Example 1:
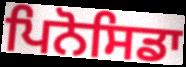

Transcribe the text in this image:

ਪਿਨੋਸਿਡਾ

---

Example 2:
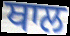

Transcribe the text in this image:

ਥਾਲ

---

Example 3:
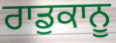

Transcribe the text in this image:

ਰਾਡੁਕਾਨੂ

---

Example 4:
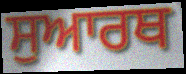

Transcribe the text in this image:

ਸੁਆਰਥ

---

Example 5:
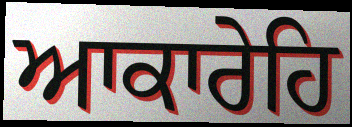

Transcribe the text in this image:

ਆਕਾਰੇਹਿ